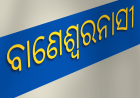
ବାଣେଶ୍ୱରନାସୀ